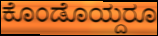
ಕೊಂಡೊಯ್ದರೂ